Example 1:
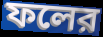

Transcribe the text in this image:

ফলের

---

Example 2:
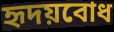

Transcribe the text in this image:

হৃদয়বোধ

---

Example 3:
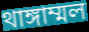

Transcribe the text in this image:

থাঙ্গাম্মল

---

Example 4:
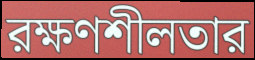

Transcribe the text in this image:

রক্ষণশীলতার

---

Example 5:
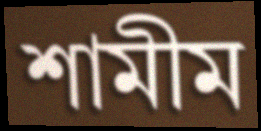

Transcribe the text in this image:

শামীম